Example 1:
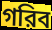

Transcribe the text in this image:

গরিব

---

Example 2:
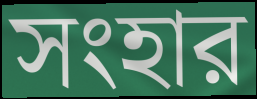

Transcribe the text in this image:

সংহার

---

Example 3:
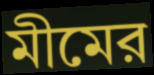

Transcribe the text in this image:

মীমের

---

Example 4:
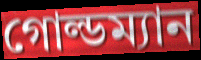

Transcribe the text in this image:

গোল্ডম্যান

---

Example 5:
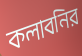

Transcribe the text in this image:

কলাবনির